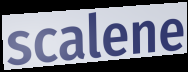
scalene